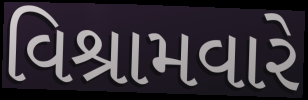
વિશ્રામવારે